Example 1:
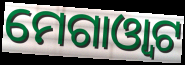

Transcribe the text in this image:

ମେଗାଓ୍ୱାଟ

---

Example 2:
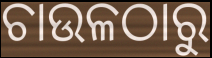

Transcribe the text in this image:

ଚାଉଳଠାରୁ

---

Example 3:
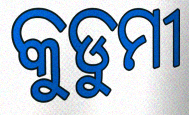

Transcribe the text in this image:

କୁଡୁମୀ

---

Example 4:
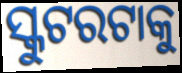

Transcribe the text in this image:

ସ୍କୁଟରଟାକୁ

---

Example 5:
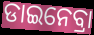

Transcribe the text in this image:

ଡାଇନେବ୍ରା